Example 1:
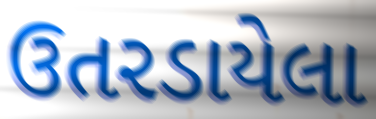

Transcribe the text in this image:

ઉતરડાયેલા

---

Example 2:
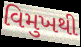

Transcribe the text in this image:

વિમુખથી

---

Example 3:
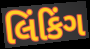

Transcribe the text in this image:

લિંકિંગ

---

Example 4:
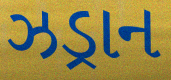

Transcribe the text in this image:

ઝડ્રાન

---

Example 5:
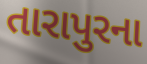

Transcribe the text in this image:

તારાપુરના